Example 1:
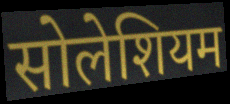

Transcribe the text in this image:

सोलेशियम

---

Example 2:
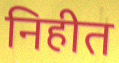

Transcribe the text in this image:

निहीत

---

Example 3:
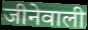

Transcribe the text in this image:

जीनेवाली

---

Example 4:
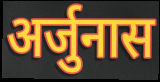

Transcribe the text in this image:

अर्जुनास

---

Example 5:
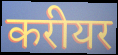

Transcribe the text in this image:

करीयर